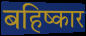
बहिष्कार